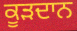
ਕੂੜਦਾਨ